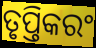
ତୃପ୍ତିକରଂ